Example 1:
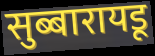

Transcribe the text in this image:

सुब्बारायडू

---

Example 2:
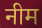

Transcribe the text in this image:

नीम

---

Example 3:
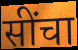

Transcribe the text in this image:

सींचा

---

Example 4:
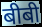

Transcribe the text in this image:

बीबी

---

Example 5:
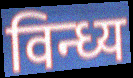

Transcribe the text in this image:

विन्ध्य